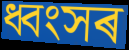
ধ্বংসৰ